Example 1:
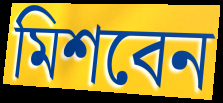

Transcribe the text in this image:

মিশবেন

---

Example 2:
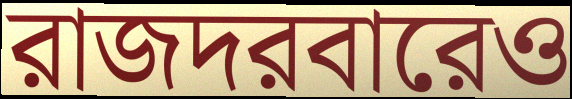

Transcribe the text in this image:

রাজদরবারেও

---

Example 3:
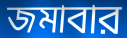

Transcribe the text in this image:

জমাবার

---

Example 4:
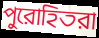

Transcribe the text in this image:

পুরোহিতরা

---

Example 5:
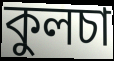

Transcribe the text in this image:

কুলচা